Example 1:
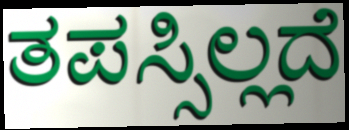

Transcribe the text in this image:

ತಪಸ್ಸಿಲ್ಲದೆ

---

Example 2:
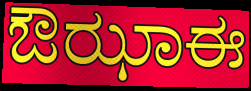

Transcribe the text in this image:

ಔಝಾಈ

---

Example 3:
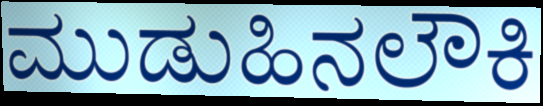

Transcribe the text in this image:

ಮುಡುಹಿನಲೌಕಿ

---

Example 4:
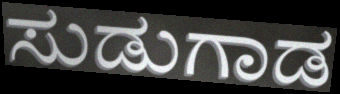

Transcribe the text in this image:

ಸುಡುಗಾಡ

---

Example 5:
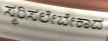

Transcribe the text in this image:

ಸ್ಮರಿಸಲೇಬೇಕಾದ